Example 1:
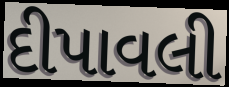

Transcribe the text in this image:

દીપાવલી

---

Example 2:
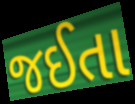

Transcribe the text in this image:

જઈતા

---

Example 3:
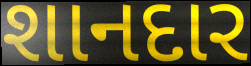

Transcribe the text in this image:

શાનદાર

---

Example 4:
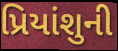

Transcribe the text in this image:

પ્રિયાંશુની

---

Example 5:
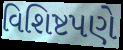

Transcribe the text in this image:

વિશિષ્ટપણે